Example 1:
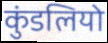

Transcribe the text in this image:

कुंडलियो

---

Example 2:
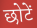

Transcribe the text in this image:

छोटें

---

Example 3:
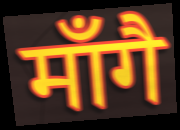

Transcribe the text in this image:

माँगै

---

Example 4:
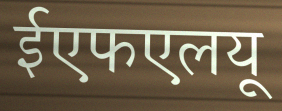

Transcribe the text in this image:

ईएफएलयू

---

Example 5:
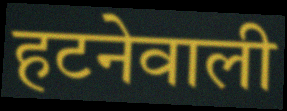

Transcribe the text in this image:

हटनेवाली